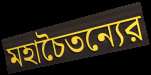
মহাচৈতন্যের